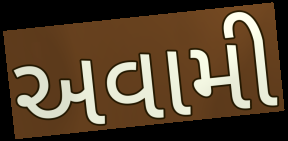
અવામી